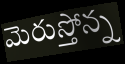
మెరుస్తోన్న